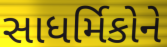
સાધર્મિકોને